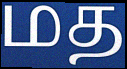
மத